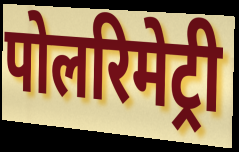
पोलरिमेट्री